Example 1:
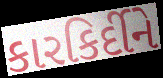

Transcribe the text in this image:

કારકિર્દીને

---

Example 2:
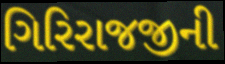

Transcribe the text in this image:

ગિરિરાજજીની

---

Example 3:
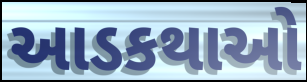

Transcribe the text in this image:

આડકથાઓ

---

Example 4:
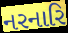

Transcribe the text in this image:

નરનારિ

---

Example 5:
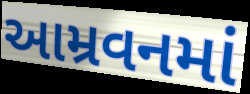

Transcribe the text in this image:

આમ્રવનમાં